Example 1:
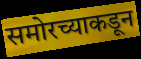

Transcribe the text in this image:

समोरच्याकडून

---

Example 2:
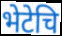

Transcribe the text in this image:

भेटेचि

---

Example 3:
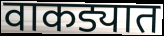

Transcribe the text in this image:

वाकड्यात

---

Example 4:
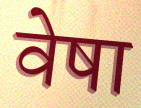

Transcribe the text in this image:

वेषा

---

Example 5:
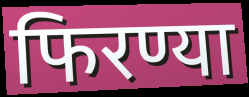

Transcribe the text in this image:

फिरण्या